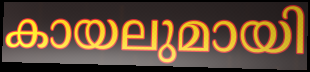
കായലുമായി